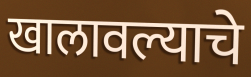
खालावल्याचे